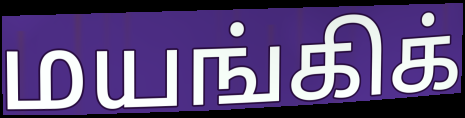
மயங்கிக்